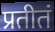
प्रतीतं